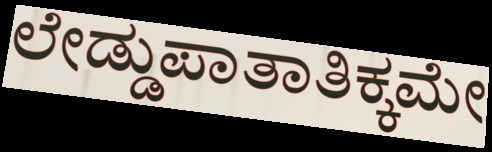
ಲೇಡ್ಡುಪಾತಾತಿಕ್ಕಮೇ